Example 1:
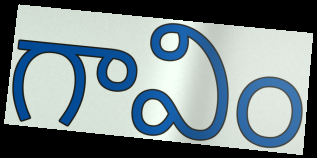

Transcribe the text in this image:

గావిం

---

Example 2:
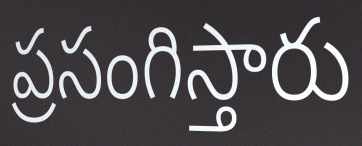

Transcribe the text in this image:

ప్రసంగిస్తారు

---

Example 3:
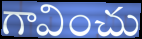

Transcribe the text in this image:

గావించు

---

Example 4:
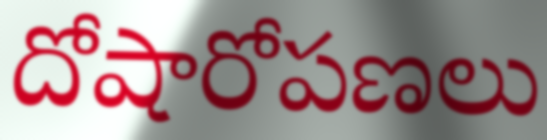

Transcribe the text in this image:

దోషారోపణలు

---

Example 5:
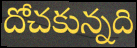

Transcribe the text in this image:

దోచకున్నది